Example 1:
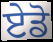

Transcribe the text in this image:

ਏਡੋ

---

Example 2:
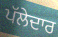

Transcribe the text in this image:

ਪੱਲੇਦਾਰ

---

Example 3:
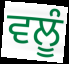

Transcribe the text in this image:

ਵਲੂੰ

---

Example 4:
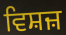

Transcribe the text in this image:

ਵਿਸ਼ਜ਼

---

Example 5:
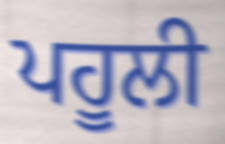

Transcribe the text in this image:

ਪਹੂਲੀ